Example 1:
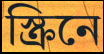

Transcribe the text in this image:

স্ক্রিনে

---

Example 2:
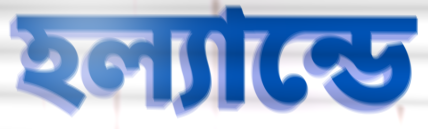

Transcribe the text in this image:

হল্যান্ডে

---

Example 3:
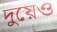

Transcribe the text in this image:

দুয়েও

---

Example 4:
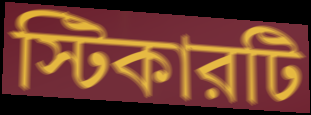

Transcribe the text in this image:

স্টিকারটি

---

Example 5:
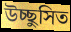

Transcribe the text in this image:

উচ্ছুসিত